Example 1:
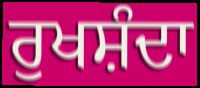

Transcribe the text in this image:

ਰੁਖਸ਼ੰਦਾ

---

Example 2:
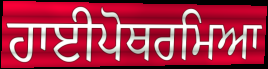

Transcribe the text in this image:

ਹਾਈਪੋਥਰਮਿਆ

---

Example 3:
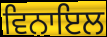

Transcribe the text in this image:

ਵਿਨਾਇਲ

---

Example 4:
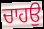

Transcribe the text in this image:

ਚਾਹਉ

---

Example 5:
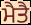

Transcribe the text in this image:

ਮੈਤੈ